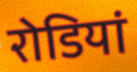
रोडियां